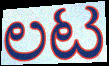
ಲಟ